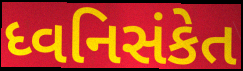
ધ્વનિસંકેત